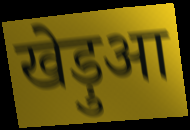
खेड़ुआ